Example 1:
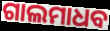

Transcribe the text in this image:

ଗାଲମାଧବ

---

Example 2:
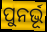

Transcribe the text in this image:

ପୁନର୍ଭୂ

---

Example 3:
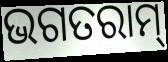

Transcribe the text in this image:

ଭଗତରାମ୍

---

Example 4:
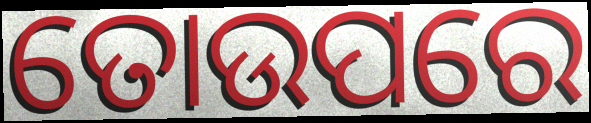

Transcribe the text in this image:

ତୋଉପରେ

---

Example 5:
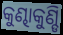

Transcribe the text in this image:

କୁଣ୍ଢାକୁଣ୍ଡି